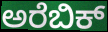
ಅರೆಬಿಕ್